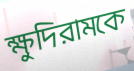
ক্ষুদিরামকে